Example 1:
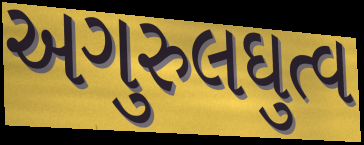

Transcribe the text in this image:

અગુરુલઘુત્વ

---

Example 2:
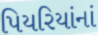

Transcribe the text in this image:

પિયરિયાંનાં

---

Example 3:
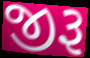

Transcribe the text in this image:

જીરૂ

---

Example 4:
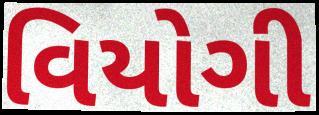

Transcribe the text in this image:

વિયોગી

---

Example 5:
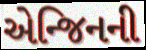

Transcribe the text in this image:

એન્જિનની